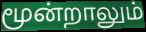
மூன்றாலும்